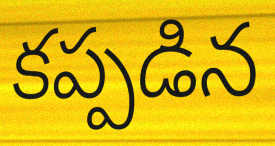
కప్పడిన